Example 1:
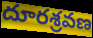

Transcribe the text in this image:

దూరశ్రవణ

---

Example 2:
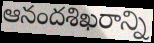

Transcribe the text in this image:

ఆనందశిఖరాన్ని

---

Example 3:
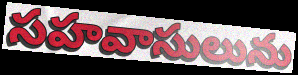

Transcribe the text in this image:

సహవాసులును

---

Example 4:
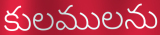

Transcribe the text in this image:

కులములను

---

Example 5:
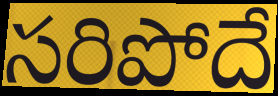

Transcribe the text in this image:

సరిపోదే